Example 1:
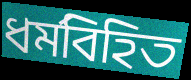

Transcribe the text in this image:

ধর্মবিহিত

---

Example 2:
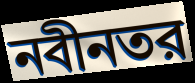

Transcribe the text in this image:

নবীনতর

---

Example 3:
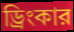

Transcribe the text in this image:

ড্রিংকার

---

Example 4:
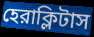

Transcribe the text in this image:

হেরাক্লিটাস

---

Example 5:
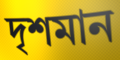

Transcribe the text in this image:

দৃশমান